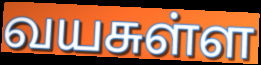
வயசுள்ள